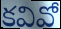
కవివో